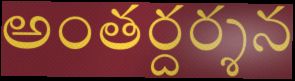
అంతర్దర్శన